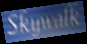
Skywalk